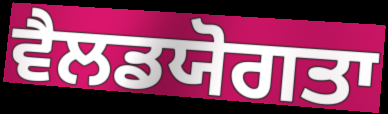
ਵੈਲਡਯੋਗਤਾ